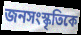
জনসংস্কৃতিকে